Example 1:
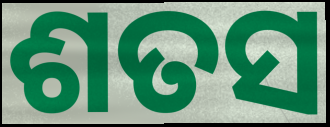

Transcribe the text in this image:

ଶତସ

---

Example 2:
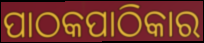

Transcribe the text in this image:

ପାଠକପାଠିକାର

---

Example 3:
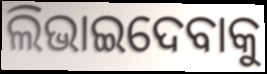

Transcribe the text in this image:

ଲିଭାଇଦେବାକୁ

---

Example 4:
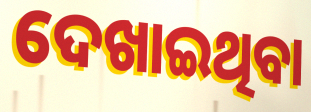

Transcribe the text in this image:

ଦେଖାଇଥିବା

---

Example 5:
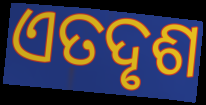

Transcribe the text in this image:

ଏତଦୃଶ